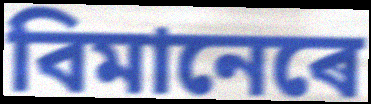
বিমানেৰে